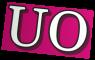
UO